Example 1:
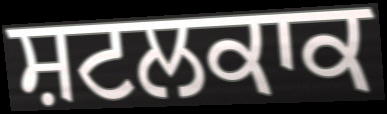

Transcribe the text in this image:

ਸ਼ਟਲਕਾਕ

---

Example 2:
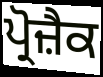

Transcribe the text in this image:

ਪ੍ਰੋਜ਼ੈਕ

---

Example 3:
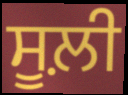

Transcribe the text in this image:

ਸੂਲ਼ੀ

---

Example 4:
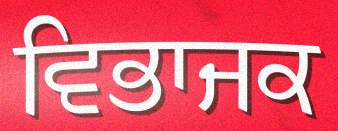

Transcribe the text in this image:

ਵਿਭਾਜਕ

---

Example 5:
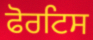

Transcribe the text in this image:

ਫੋਰਟਿਸ